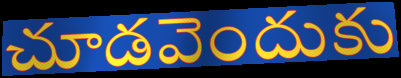
చూడవెందుకు